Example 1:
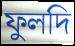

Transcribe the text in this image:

ফুলদি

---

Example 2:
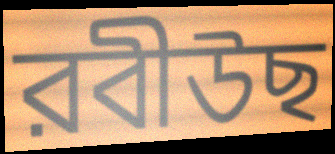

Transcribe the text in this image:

রবীউছ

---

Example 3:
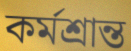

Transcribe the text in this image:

কর্মশ্রান্ত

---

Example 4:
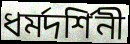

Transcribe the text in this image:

ধর্মদর্শিনী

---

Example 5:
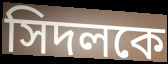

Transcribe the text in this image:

সিদলকে